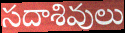
సదాశివులు